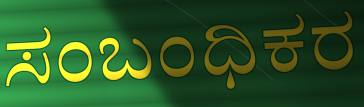
ಸಂಬಂಧಿಕರ